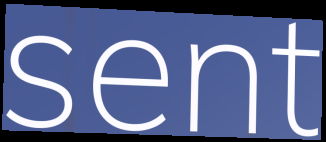
sent